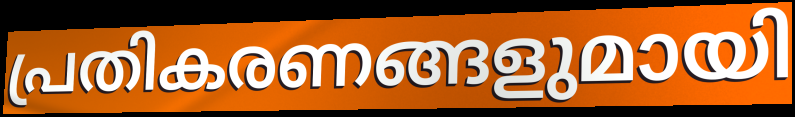
പ്രതികരണങ്ങളുമായി